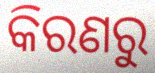
କିରଣରୁ